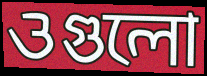
ওগুলো